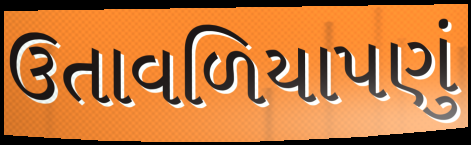
ઉતાવળિયાપણું